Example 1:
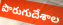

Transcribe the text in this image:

పొరుగుదేశాల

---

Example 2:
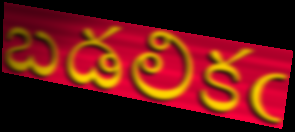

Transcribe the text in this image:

బడలికఁ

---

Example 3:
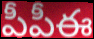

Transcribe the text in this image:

పీపీఈ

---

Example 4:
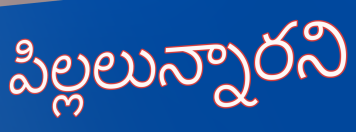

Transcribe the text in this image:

పిల్లలున్నారని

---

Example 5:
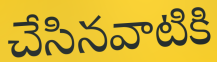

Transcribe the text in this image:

చేసినవాటికి